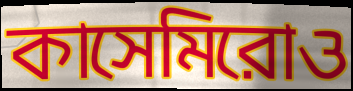
কাসেমিরোও